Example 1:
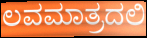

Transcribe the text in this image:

ಲವಮಾತ್ರದಲಿ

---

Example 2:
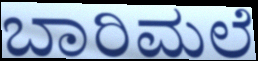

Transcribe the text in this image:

ಬಾರಿಮಲೆ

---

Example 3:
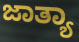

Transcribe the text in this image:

ಜಾತ್ಯಾ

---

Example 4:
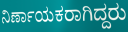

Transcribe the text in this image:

ನಿರ್ಣಾಯಕರಾಗಿದ್ದರು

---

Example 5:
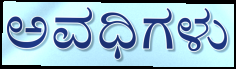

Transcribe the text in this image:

ಅವಧಿಗಳು